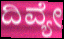
ದಿವ್ಯೇ